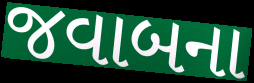
જવાબના